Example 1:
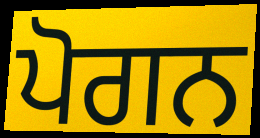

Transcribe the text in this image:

ਪੋਗਨ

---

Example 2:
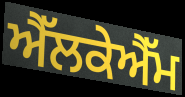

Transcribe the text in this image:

ਐੱਲਕੇਐੱਮ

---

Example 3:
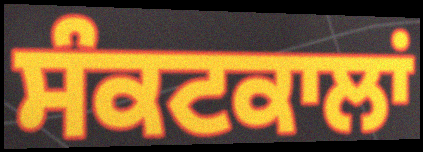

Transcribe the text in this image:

ਸੰਕਟਕਾਲਾਂ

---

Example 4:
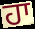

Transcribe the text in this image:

ਹਾ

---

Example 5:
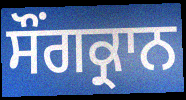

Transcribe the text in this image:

ਸੌਂਗਕ੍ਰਾਨ